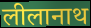
लीलानाथ